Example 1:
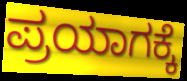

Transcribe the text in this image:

ಪ್ರಯಾಗಕ್ಕೆ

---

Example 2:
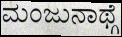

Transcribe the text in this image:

ಮಂಜುನಾಥ್ಗೆ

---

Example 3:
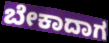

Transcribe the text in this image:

ಬೇಕಾದಾಗ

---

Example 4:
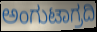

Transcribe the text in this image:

ಅಂಗುಟಾಗ್ರದಿ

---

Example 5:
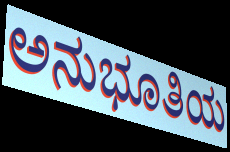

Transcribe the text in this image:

ಅನುಭೂತಿಯ